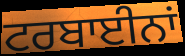
ਟਰਬਾਈਨਾਂ